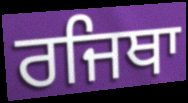
ਰਜਿਥਾ